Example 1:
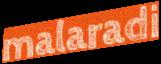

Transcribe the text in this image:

malaradi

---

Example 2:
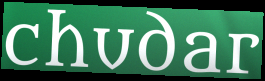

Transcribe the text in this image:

chudar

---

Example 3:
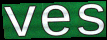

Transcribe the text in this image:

ves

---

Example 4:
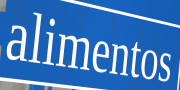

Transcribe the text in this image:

alimentos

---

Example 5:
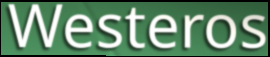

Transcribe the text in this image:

Westeros